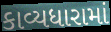
કાવ્યધારામાં